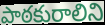
పాఠకురాలిని